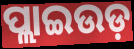
ପ୍ଲାଇଉଡ଼